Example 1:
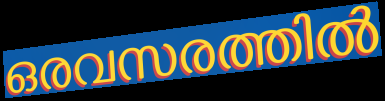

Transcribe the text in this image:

ഒരവസരത്തിൽ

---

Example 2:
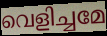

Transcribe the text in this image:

വെളിച്ചമേ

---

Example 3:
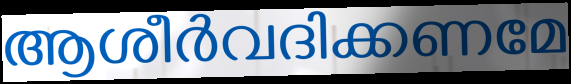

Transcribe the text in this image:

ആശീർവദിക്കണമേ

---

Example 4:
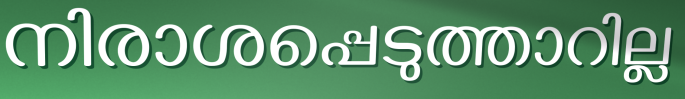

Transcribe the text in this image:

നിരാശപ്പെടുത്താറില്ല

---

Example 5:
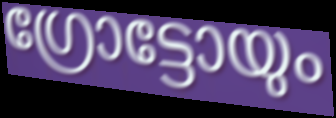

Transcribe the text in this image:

ഗ്രോട്ടോയും